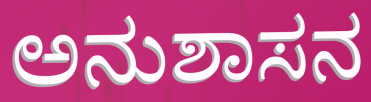
ಅನುಶಾಸನ